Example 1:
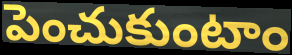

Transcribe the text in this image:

పెంచుకుంటాం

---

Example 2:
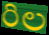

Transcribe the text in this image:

రిల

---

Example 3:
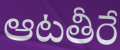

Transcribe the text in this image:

ఆటతీరే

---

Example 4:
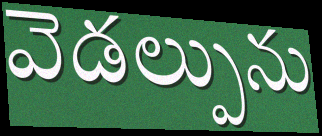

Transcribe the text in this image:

వెడల్పును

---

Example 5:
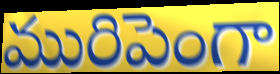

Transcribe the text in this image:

మురిపెంగా